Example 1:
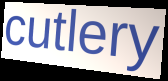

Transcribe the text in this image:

cutlery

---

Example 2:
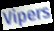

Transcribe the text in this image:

Vipers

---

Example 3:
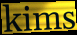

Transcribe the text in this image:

kims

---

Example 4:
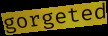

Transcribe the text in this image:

gorgeted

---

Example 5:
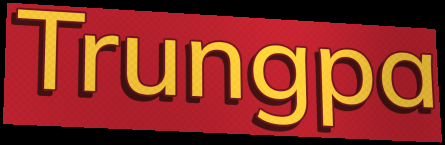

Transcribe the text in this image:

Trungpa